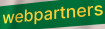
webpartners